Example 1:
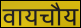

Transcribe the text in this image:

वायचौय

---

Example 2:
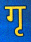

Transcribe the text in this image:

गृ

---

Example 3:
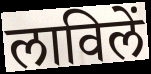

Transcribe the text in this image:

लाविलें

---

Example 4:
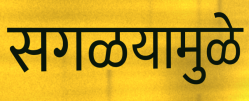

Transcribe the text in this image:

सगळयामुळे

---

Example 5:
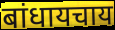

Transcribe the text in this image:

बांधायचाय